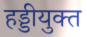
हड्डीयुक्त